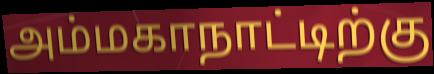
அம்மகாநாட்டிற்கு